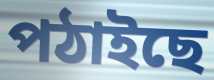
পঠাইছে